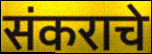
संकराचे